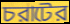
চরাটের